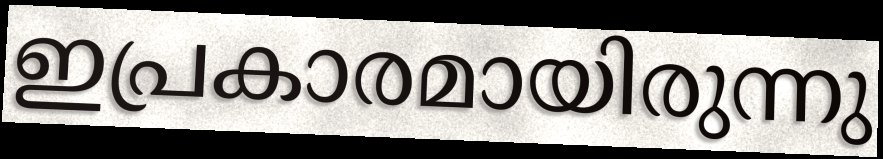
ഇപ്രകാരമായിരുന്നു